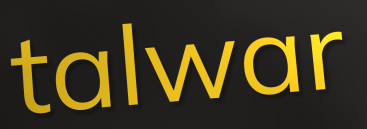
talwar